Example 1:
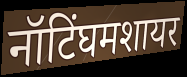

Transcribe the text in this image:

नॉटिंघमशायर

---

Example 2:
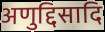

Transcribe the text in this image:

अणुद्दिसादि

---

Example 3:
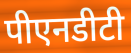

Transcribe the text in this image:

पीएनडीटी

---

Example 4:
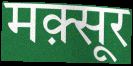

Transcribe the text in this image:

मक़्सूर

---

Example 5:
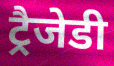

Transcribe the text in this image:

ट्रैजेडी